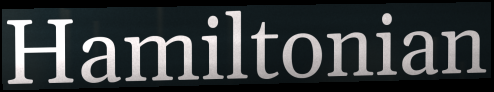
Hamiltonian